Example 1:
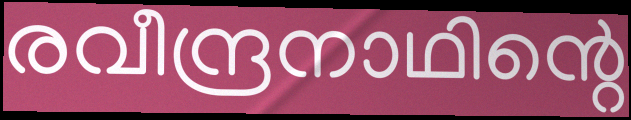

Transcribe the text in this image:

രവീന്ദ്രനാഥിന്റെ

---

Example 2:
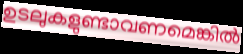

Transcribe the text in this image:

ഉടലുകളുണ്ടാവണമെങ്കിൽ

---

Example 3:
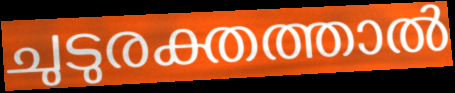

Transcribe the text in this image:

ചുടുരക്തത്താൽ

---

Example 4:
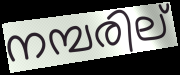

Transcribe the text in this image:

നമ്പരില്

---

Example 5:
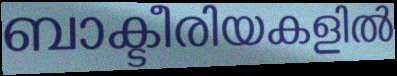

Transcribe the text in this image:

ബാക്ടീരിയകളിൽ